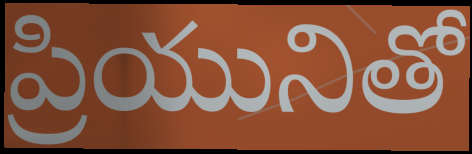
ప్రియునితో